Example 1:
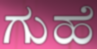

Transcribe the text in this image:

ಗುಹೆ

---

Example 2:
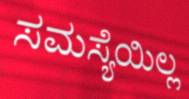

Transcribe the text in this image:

ಸಮಸ್ಯೆಯಿಲ್ಲ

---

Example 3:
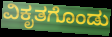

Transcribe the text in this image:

ವಿಕೃತಗೊಂಡು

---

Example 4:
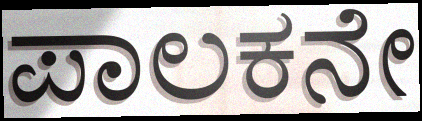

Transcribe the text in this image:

ಪಾಲಕನೇ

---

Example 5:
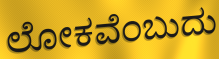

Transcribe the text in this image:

ಲೋಕವೆಂಬುದು